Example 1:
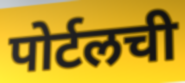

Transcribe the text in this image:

पोर्टलची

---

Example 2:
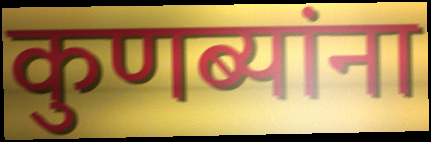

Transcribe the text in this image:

कुणब्यांना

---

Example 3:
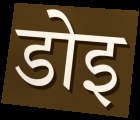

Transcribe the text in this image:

डोइ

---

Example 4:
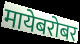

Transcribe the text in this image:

मायेबरोबर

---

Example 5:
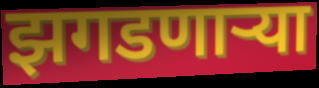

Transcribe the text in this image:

झगडणाऱ्या